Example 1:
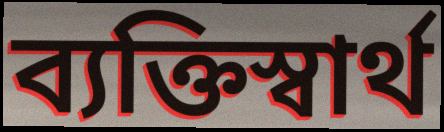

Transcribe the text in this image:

ব্যক্তিস্বার্থ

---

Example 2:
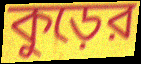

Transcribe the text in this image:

কুড়ের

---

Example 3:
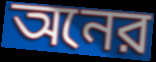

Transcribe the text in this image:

অনের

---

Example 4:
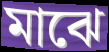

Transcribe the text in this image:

মাঝে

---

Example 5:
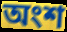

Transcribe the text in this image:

অংশ